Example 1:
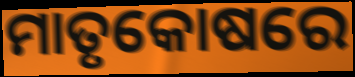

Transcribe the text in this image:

ମାତୃକୋଷରେ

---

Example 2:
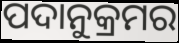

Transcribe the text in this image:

ପଦାନୁକ୍ରମର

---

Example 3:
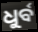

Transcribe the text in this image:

ଧୁର୍ବ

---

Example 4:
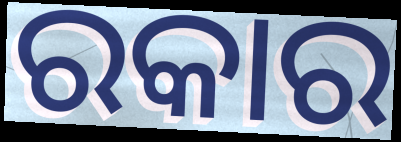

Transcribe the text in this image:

ରକାର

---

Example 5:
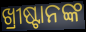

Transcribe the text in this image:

ଖ୍ରୀଷ୍ଟାନଙ୍କ